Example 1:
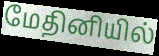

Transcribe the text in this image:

மேதினியில்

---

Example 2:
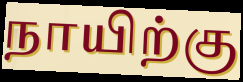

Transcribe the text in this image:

நாயிற்கு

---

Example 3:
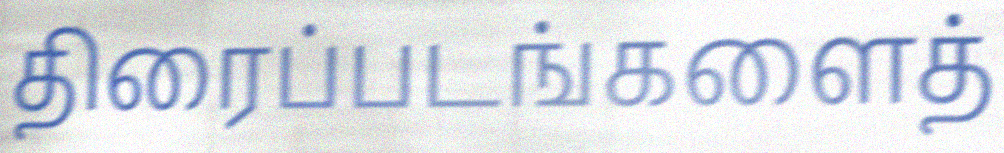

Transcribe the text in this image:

திரைப்படங்களைத்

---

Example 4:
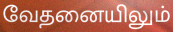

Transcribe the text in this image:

வேதனையிலும்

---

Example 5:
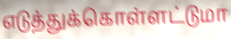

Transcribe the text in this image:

எடுத்துக்கொள்ளட்டுமா